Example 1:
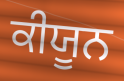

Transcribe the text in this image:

ਕੀਯੂਨ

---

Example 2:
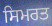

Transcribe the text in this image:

ਸਿਮਰਤ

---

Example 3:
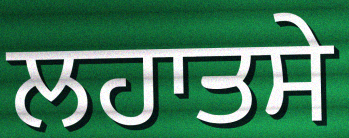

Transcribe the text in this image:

ਲਹਾਤਸੇ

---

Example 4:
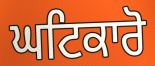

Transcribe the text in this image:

ਘਟਿਕਾਰੋ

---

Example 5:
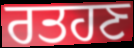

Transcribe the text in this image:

ਰਤਹਣ